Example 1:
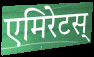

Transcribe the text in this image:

एमिरेटस्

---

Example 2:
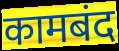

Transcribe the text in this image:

कामबंद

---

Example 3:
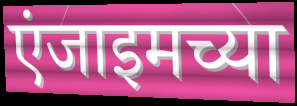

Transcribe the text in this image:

एंजाइमच्या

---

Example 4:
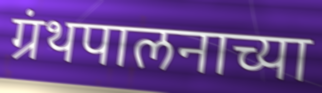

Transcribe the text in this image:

ग्रंथपालनाच्या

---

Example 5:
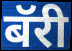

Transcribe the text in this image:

बॅरी